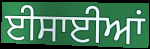
ਈਸਾਈਆਂ